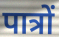
पात्रों